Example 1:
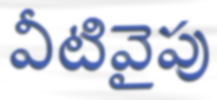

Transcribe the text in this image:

వీటివైపు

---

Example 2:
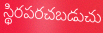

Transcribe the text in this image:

స్థిరపరచబడుచు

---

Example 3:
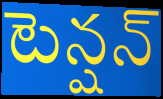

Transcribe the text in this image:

టెన్షన్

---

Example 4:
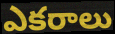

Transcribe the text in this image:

ఎకరాలు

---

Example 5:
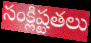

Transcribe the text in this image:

సంక్లిష్టతలు